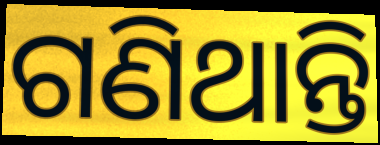
ଗଣିଥାନ୍ତି